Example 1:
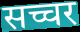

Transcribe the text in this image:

सच्चर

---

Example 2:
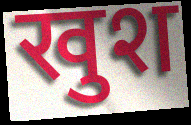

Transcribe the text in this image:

खुश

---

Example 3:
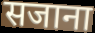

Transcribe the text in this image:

सजाना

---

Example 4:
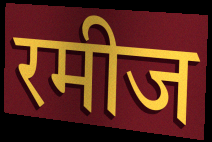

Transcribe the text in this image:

रमीज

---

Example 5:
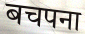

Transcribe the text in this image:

बचपना